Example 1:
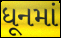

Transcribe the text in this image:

ધૂનમાં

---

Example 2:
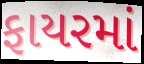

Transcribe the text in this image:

ફાયરમાં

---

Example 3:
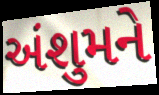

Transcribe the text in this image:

અંશુમને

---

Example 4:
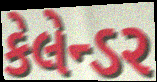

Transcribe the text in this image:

કેલેન્ડર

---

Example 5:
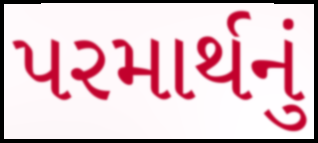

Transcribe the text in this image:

પરમાર્થનું